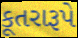
કૂતરારૂપે